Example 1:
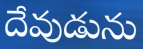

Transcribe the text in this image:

దేవుడును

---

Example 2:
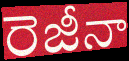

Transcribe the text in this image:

రెజీనా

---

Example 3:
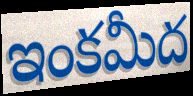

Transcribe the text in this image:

ఇంకమీద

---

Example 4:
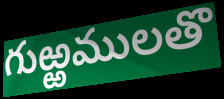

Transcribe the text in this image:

గుఱ్ఱములతొ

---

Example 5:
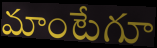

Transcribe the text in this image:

మాంటేగూ